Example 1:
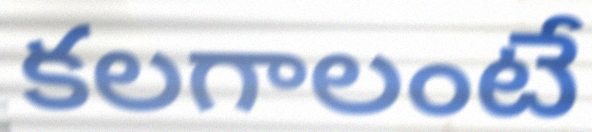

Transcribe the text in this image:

కలగాలంటే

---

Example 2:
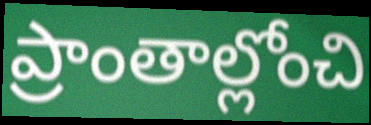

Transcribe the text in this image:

ప్రాంతాల్లోంచి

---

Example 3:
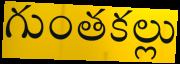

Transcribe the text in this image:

గుంతకల్లు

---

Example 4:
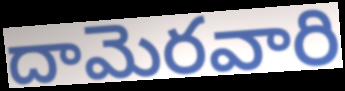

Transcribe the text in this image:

దామెరవారి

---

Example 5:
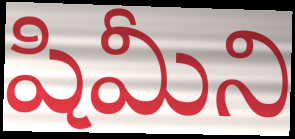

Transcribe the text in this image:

షిమీని